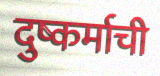
दुष्कर्माची